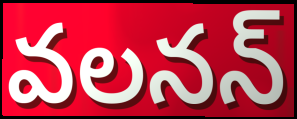
వలనన్